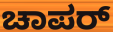
ಚಾಪರ್